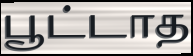
பூட்டாத